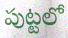
పుట్టలో